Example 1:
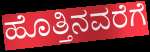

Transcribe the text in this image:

ಹೊತ್ತಿನವರೆಗೆ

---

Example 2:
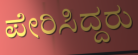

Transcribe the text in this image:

ಪೇರಿಸಿದ್ದರು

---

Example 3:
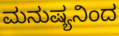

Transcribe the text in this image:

ಮನುಷ್ಯನಿಂದ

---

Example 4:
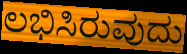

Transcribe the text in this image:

ಲಭಿಸಿರುವುದು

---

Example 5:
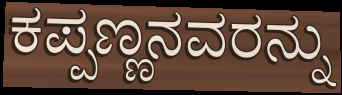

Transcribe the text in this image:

ಕಪ್ಪಣ್ಣನವರನ್ನು